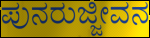
ಪುನರುಜ್ಜೀವನ